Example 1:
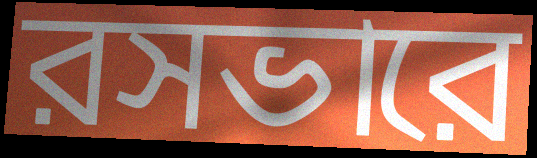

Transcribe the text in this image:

রসভারে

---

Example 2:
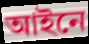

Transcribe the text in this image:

আইনে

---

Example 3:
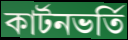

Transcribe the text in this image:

কার্টনভর্তি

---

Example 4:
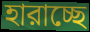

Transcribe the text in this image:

হারাচ্ছে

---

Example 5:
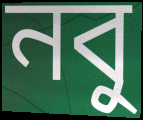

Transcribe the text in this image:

নবু